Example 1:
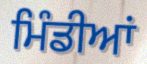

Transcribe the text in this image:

ਮਿੰਡੀਆਂ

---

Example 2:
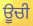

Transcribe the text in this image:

ਊਚੀ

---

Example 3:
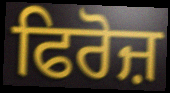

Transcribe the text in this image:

ਫਿਰੋਜ਼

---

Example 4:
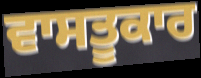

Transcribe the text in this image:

ਵਾਸਤੂਕਾਰ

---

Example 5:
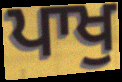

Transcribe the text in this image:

ਪਾਖੁ